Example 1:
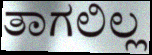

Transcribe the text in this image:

ತಾಗಲಿಲ್ಲ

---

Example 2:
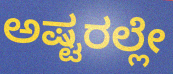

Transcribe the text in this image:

ಅಷ್ಟರಲ್ಲೇ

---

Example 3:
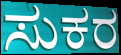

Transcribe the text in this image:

ಸುಕರ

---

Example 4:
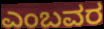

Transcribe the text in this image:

ಎಂಬವರ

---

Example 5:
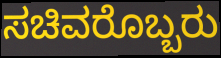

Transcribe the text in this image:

ಸಚಿವರೊಬ್ಬರು